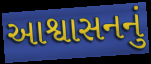
આશ્વાસનનું